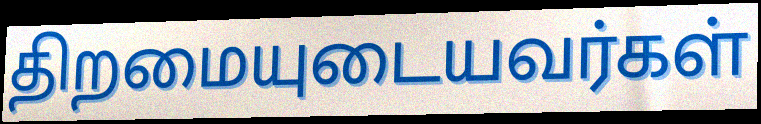
திறமையுடையவர்கள்